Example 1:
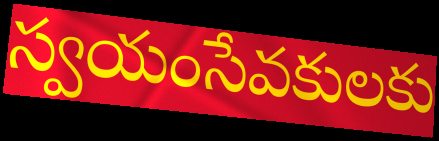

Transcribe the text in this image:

స్వయంసేవకులకు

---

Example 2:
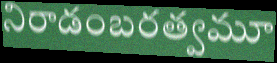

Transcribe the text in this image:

నిరాడంబరత్వమూ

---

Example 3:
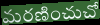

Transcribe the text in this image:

మరణించుచో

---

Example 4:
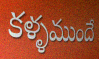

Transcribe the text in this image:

కళ్ళముందే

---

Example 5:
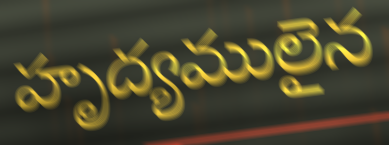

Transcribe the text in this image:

హృద్యములైన